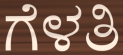
ಗೆಳತಿ